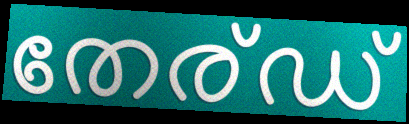
തേര്ഡ്